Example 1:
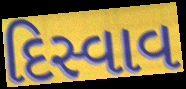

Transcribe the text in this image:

દિસ્વાવ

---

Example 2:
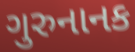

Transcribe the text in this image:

ગુરુનાનક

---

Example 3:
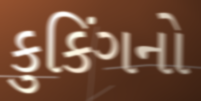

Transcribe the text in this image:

કુકિંગનો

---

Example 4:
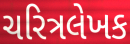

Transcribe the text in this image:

ચરિત્રલેખક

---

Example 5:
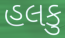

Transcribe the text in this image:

હલકુ